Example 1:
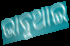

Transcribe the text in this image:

ଭାବୁଥାଇ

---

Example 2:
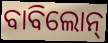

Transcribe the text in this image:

ବାବିଲୋନ୍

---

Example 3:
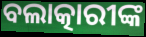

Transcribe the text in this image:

ବଲାତ୍କାରୀଙ୍କ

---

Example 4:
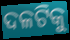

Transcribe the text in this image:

ଦଳଟିକୁ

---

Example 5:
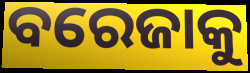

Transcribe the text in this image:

ବରେଜାକୁ